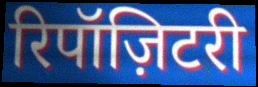
रिपॉज़िटरी